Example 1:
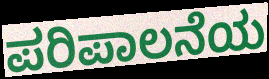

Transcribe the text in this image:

ಪರಿಪಾಲನೆಯ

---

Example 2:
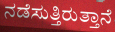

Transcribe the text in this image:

ನಡೆಸುತ್ತಿರುತ್ತಾನೆ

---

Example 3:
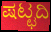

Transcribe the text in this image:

ಷಟ್ಟದಿ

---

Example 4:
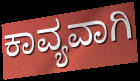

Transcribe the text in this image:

ಕಾವ್ಯವಾಗಿ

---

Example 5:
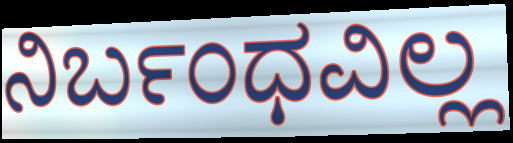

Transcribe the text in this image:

ನಿರ್ಬಂಧವಿಲ್ಲ